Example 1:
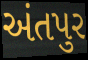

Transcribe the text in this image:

અંતપુર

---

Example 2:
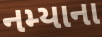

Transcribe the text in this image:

નમ્યાના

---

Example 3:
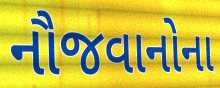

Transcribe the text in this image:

નૌજવાનોના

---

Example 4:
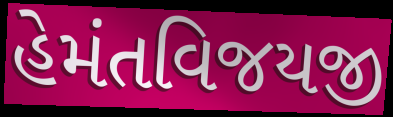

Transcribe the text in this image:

હેમંતવિજયજી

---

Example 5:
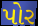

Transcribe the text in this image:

પોર